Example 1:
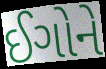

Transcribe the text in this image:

ઈગોને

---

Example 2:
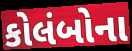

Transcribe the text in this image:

કોલંબોના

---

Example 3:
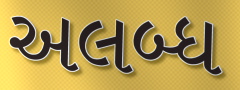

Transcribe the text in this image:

અલબ્ધ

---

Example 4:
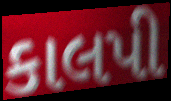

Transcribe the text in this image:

કાલપી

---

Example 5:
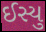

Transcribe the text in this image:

ઈસ્યુ